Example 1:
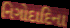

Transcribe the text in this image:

નિગોદાદિના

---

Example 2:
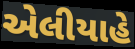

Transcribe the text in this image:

એલીયાહે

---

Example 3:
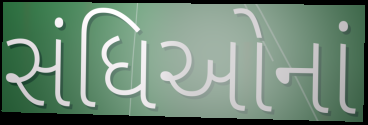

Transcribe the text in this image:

સંધિઓનાં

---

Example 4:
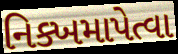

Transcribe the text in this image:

નિક્ખમાપેત્વા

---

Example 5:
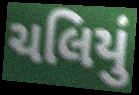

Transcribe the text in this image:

ચલિયું